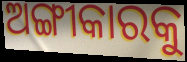
ଅଙ୍ଗୀକାରକୁ